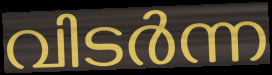
വിടർന്ന